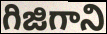
గిజిగాని